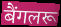
बैंगलरू